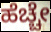
ಹೆಚ್ಚೇ